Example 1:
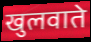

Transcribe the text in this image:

खुलवाते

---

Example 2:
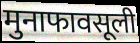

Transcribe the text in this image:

मुनाफावसूली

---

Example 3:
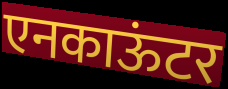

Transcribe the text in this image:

एनकाऊंटर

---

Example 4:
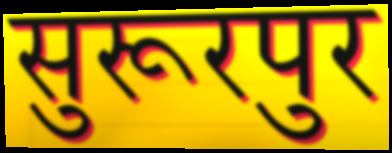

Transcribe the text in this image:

सुरूरपुर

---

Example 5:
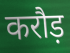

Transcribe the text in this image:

करौड़